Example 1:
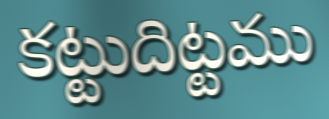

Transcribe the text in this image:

కట్టుదిట్టము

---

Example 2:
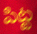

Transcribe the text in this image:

పిట్ట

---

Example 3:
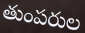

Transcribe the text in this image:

తుంపరుల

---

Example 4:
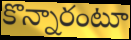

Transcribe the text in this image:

కొన్నారంటూ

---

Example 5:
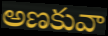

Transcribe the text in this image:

అణకువా